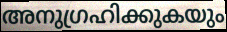
അനുഗ്രഹിക്കുകയും